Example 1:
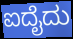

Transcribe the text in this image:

ಐದೈದು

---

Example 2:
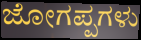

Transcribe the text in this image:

ಜೋಗಪ್ಪಗಳು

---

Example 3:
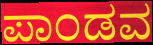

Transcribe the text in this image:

ಪಾಂಡವ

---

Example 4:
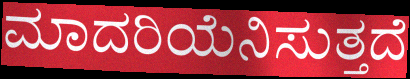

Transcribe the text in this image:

ಮಾದರಿಯೆನಿಸುತ್ತದೆ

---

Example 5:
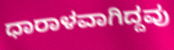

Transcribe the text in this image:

ಧಾರಾಳವಾಗಿದ್ದವು